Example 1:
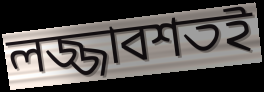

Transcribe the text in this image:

লজ্জাবশতই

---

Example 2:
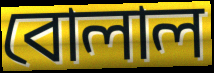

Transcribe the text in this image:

বোলাল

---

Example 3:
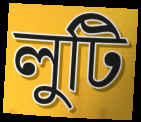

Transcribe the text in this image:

লুটি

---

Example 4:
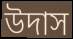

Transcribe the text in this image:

উদাস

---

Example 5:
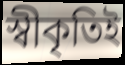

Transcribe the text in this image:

স্বীকৃতিই